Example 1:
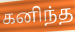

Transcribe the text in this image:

கனிந்த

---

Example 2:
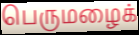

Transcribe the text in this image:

பெருமழைக்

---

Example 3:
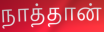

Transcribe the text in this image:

நாத்தான்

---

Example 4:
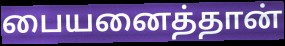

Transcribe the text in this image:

பையனைத்தான்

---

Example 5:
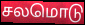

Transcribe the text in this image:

சலமொடு